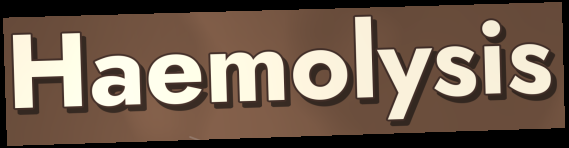
Haemolysis